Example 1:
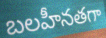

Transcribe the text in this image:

బలహీనతగా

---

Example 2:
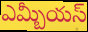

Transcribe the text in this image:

ఎమ్బీయస్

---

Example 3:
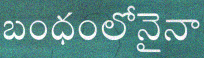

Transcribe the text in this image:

బంధంలోనైనా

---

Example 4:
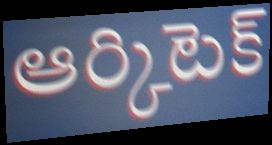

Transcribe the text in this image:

ఆర్కిటెక్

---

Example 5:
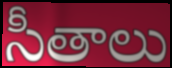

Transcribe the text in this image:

సీతాలు